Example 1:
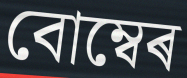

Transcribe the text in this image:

বোম্বেৰ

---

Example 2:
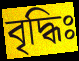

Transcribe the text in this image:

বৃদ্ধিঃ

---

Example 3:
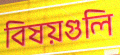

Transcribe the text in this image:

বিষয়গুলি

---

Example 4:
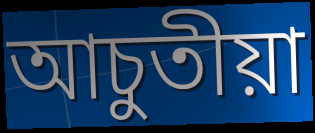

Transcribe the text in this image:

আচুতীয়া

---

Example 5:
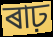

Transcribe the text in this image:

ৰাঢ়